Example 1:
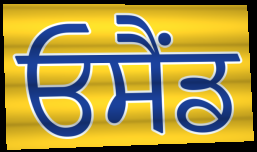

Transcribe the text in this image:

ਓਸੈਂਡ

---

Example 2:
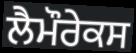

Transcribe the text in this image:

ਲੈਮੌਰੇਕਸ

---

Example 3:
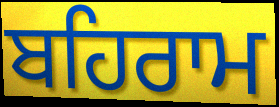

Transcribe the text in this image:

ਬਹਿਰਾਮ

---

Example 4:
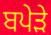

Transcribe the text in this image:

ਬਪੇੜੇ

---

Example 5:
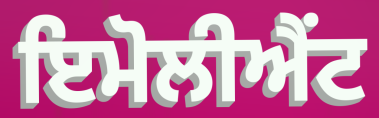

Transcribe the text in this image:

ਇਮੋਲੀਐਂਟ